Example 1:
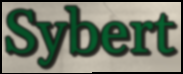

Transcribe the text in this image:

Sybert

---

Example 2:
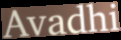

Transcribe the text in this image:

Avadhi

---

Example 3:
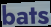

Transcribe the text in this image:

bats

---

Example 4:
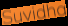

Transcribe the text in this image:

Suvidha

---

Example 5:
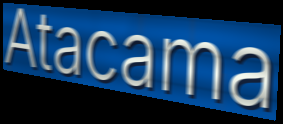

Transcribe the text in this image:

Atacama